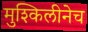
मुश्किलीनेच